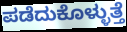
ಪಡೆದುಕೊಳ್ಳುತ್ತೆ